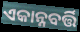
ଏକାନ୍ନବର୍ତ୍ତି